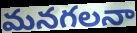
మనగలనా